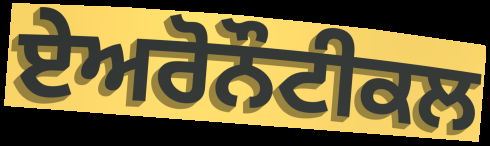
ਏਅਰੋਨੌਟੀਕਲ